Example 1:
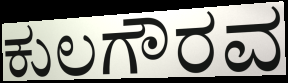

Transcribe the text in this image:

ಕುಲಗೌರವ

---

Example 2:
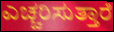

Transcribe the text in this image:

ಎಚ್ಚರಿಸುತ್ತಾರೆ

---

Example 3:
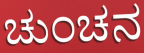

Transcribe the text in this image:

ಚುಂಚನ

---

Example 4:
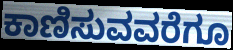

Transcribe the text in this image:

ಕಾಣಿಸುವವರೆಗೂ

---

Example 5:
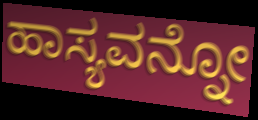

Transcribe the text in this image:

ಹಾಸ್ಯವನ್ನೋ